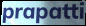
prapatti